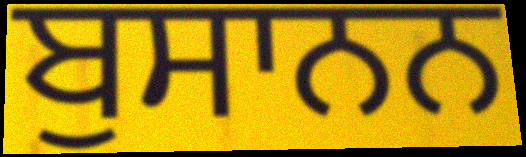
ਬੁਸਾਨਨ